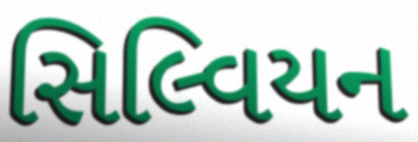
સિલ્વિયન